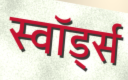
स्वॉर्ड्स